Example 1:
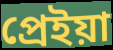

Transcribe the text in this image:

প্রেইয়া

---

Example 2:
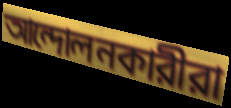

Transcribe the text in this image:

আন্দোলনকারীরা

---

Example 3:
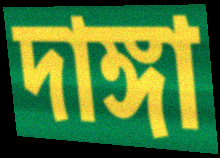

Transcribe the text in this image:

দাঙ্গা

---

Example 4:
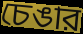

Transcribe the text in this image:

চেঙার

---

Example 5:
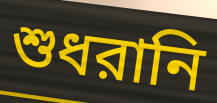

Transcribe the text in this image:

শুধরানি